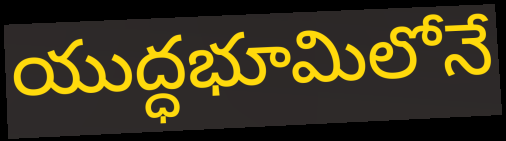
యుద్ధభూమిలోనే